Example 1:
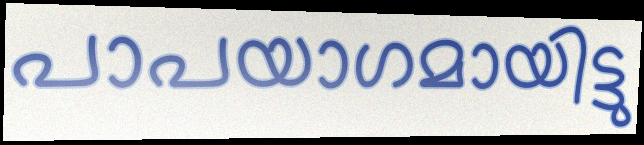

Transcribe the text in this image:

പാപയാഗമായിട്ടു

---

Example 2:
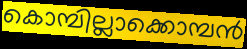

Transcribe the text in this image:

കൊമ്പില്ലാക്കൊമ്പൻ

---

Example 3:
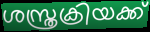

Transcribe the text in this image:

ശസ്ത്രക്രിയക്ക്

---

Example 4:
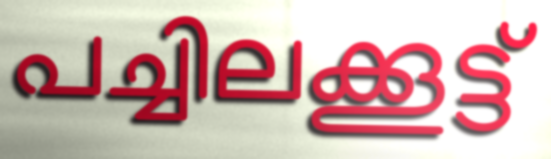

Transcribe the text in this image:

പച്ചിലക്കൂട്ട്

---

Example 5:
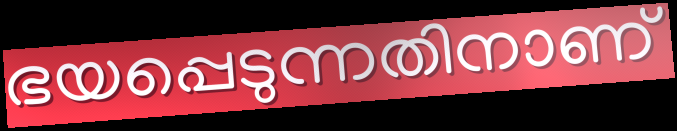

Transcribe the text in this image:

ഭയപ്പെടുന്നതിനാണ്